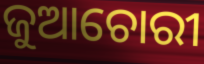
ଜୁଆଚୋରୀ